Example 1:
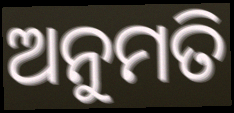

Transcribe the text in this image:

ଅନୁମତି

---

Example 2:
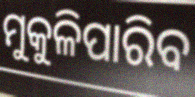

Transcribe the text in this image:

ମୁକୁଳିପାରିବ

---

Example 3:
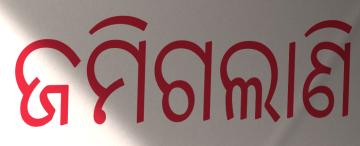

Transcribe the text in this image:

ଜମିଗଲାଣି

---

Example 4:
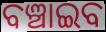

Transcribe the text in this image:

ବଞ୍ଚାଇବ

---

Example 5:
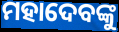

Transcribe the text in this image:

ମହାଦେବଙ୍କୁ